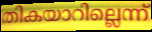
തികയാറില്ലെന്ന്